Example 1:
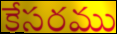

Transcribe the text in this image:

కేసరము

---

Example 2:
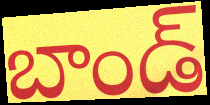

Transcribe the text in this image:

బాండ్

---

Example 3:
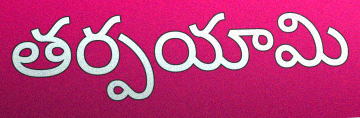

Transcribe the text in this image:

తర్పయామి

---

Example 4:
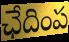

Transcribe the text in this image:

ఛేదింప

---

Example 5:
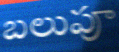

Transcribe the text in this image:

బలుపూ